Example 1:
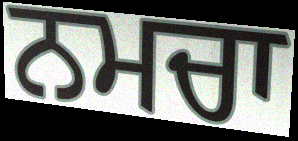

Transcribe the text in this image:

ਨਮਚਾ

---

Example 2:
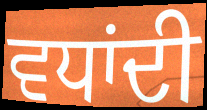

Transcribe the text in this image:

ਵਧਾਂਦੀ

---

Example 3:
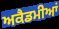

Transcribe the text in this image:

ਅਕੈਡਮੀਆਂ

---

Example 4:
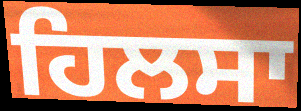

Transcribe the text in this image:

ਹਿਲਸਾ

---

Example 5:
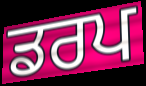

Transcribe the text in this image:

ਡਰਪ